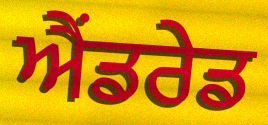
ਐਂਡਰੇਡ